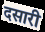
दसारी